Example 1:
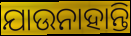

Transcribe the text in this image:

ଯାଉନାହାନ୍ତି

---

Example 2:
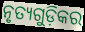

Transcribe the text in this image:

ନୃତ୍ୟଗୁଡ଼ିକର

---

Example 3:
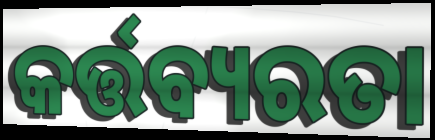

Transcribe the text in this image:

କର୍ତ୍ତବ୍ୟରତା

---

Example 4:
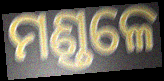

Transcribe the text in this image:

ମଣ୍ଡଳେ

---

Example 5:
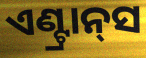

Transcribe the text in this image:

ଏଣ୍ଟ୍ରାନ୍‌ସ